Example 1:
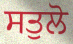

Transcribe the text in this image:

ਸਤੁਲੋ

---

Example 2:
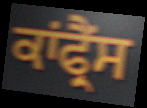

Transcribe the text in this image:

ਕਾਂਫ੍ਰੈਂਸ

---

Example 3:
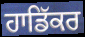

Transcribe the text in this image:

ਹਾਡਿੱਕਰ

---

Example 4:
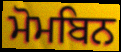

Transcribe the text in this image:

ਮੋਮਬਿਨ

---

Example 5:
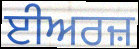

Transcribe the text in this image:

ਈਅਰਜ਼